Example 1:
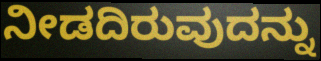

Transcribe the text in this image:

ನೀಡದಿರುವುದನ್ನು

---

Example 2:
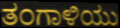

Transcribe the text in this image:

ತಂಗಾಳಿಯು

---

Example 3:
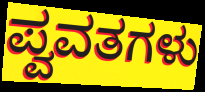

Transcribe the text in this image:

ಪ್ವವತಗಳು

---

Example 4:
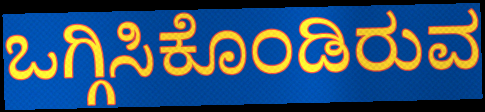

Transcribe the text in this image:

ಒಗ್ಗಿಸಿಕೊಂಡಿರುವ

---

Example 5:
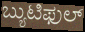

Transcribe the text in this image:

ಬ್ಯುಟಿಫುಲ್